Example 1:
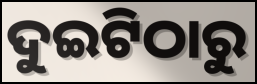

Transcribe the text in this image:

ଦୁଇଟିଠାରୁ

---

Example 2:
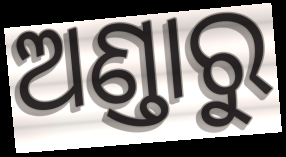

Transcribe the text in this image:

ଅଣ୍ଡାରୁ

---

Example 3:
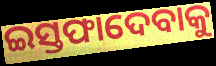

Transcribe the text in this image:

ଇସ୍ତଫାଦେବାକୁ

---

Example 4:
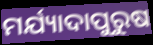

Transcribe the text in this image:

ମର୍ଯ୍ୟାଦାପୁରୁଷ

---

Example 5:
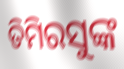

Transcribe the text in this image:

ତିମିରସୁଙ୍କ